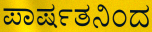
ಪಾರ್ಷತನಿಂದ